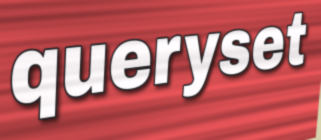
queryset